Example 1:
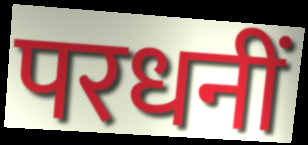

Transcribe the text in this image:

परधनीं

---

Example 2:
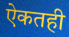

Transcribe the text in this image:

ऐकतही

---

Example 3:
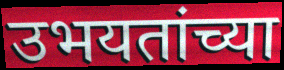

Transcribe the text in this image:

उभयतांच्या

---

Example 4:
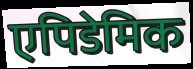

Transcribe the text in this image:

एपिडेमिक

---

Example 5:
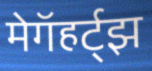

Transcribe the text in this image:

मेगॅहर्ट्झ